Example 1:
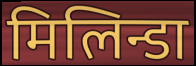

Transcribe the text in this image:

मिलिन्डा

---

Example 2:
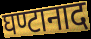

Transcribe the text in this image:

घण्टानाद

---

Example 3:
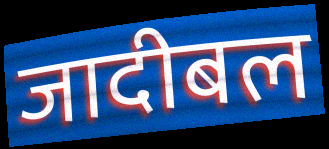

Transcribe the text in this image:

जादीबल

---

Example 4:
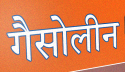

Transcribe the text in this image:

गैसोलीन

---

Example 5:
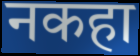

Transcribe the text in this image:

नकहा